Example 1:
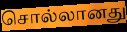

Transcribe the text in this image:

சொல்லானது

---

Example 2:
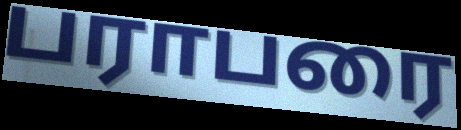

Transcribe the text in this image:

பராபரை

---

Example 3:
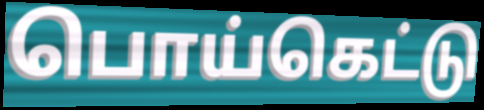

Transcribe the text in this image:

பொய்கெட்டு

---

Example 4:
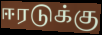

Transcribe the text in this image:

ஈரடுக்கு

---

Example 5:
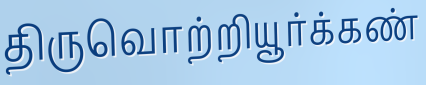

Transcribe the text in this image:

திருவொற்றியூர்க்கண்